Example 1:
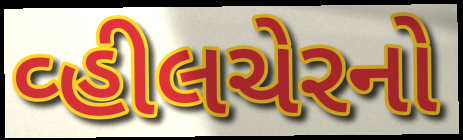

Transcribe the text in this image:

વ્હીલચેરનો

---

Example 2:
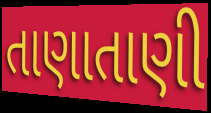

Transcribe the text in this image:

તાણાતાણી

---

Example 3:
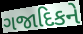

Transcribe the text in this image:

ગજાદિકને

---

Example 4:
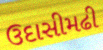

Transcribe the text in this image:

ઉદાસીમઢી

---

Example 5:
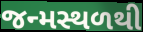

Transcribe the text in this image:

જન્મસ્થળથી